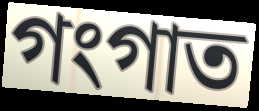
গংগাত